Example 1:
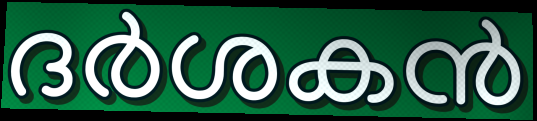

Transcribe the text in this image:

ദർശകൻ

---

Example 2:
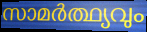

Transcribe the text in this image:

സാമർത്ഥ്യവും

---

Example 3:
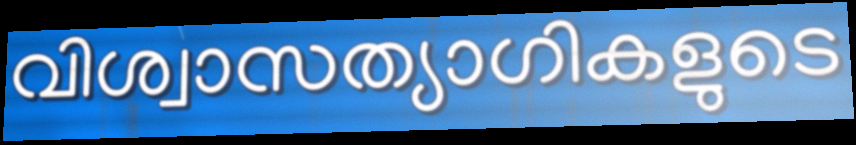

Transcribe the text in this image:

വിശ്വാസത്യാഗികളുടെ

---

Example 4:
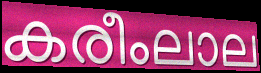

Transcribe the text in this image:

കരീംലാല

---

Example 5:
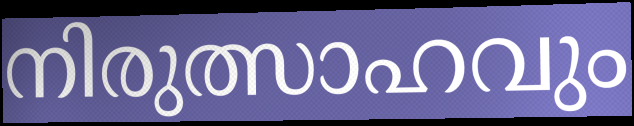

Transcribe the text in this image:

നിരുത്സാഹവും